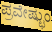
ಪ್ರವೇಷ್ಟುಂ